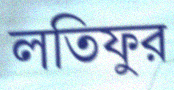
লতিফুর